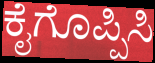
ಕೈಗೊಪ್ಪಿಸಿ